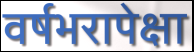
वर्षभरापेक्षा